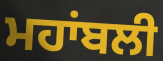
ਮਹਾਂਬਲੀ